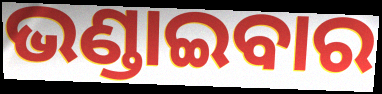
ଭଣ୍ଡାଇବାର